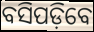
ବସିପଡ଼ିବେ